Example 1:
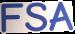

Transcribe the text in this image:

FSA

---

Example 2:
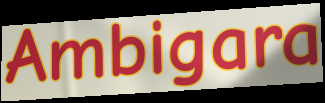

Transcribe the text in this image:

Ambigara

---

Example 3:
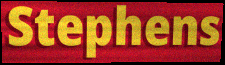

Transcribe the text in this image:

Stephens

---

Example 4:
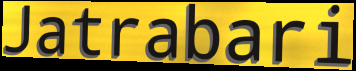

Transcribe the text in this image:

Jatrabari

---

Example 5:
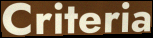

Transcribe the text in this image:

Criteria